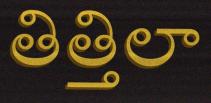
తిత్తిలా